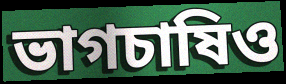
ভাগচাষিও